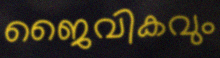
ജൈവികവും